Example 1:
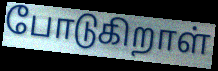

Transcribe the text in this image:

போடுகிறாள்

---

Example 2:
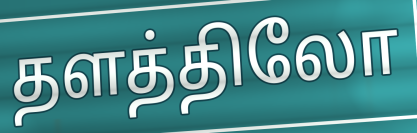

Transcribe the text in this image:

தளத்திலோ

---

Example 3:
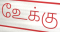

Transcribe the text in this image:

உேக்கு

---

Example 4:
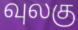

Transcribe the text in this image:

வுலகு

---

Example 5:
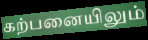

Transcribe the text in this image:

கற்பனையிலும்